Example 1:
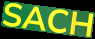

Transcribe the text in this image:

SACH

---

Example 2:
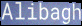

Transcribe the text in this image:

Alibagh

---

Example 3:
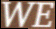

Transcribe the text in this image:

WE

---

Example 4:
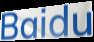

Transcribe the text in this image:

Baidu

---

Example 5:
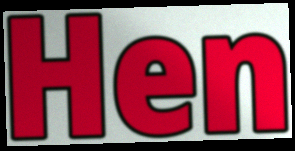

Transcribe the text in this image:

Hen